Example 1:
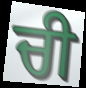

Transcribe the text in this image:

ਚੀ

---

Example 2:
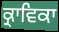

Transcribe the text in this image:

ਕ੍ਰਾਵਿਕਾ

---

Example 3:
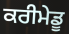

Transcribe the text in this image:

ਕਰੀਮੇਡੂ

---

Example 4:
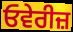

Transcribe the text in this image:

ਓਵੇਰੀਜ਼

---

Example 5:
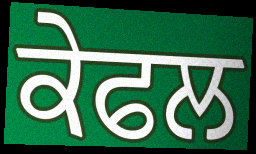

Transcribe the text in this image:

ਕੇਫਲ